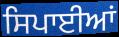
ਸਿਪਾਈਆਂ